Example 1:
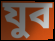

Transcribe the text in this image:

যুব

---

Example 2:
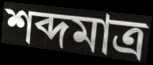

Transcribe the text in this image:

শব্দমাত্র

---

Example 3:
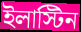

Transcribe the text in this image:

ইলাস্টিন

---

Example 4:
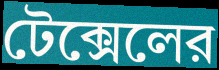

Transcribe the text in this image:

টেক্সেলের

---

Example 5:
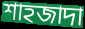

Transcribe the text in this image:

শাহজাদা